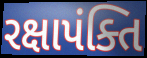
રક્ષાપંક્તિ